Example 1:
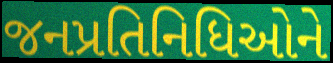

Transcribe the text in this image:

જનપ્રતિનિધિઓને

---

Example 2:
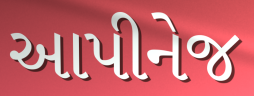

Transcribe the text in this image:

આપીનેજ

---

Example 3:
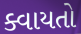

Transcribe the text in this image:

ક્વાયતો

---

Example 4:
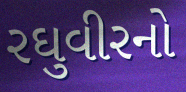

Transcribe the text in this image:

રઘુવીરનો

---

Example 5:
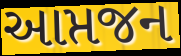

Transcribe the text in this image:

આપ્તજન